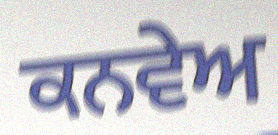
ਕਨਵੇਅ